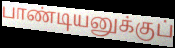
பாண்டியனுக்குப்